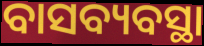
ବାସବ୍ୟବସ୍ଥା